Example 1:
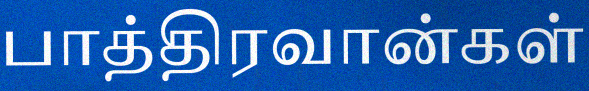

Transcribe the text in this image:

பாத்திரவான்கள்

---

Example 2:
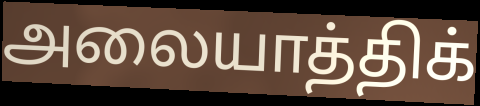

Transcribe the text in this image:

அலையாத்திக்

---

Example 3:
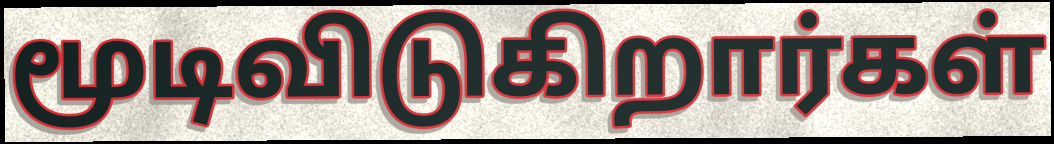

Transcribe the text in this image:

மூடிவிடுகிறார்கள்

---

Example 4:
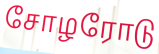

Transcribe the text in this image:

சோழரோடு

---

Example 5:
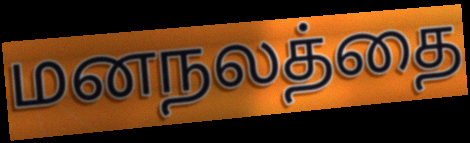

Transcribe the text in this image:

மனநலத்தை